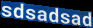
sdsadsad